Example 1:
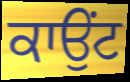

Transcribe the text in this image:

ਕਾਉਂਟ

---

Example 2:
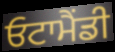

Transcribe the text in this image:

ਓਟਾਮੈਂਡੀ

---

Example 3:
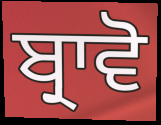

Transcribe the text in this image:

ਬ੍ਰਾਵੋ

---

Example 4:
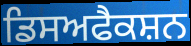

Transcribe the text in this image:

ਡਿਸਅਫੈਕਸ਼ਨ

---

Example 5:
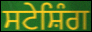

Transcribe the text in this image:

ਸਟੇਸ਼ਿੰਗ